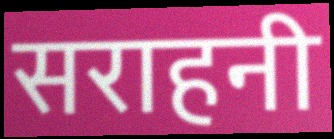
सराहनी